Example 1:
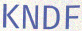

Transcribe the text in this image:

KNDF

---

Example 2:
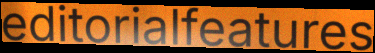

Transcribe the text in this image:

editorialfeatures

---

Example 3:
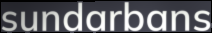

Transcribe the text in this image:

sundarbans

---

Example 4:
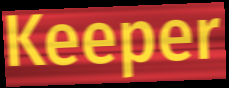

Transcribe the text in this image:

Keeper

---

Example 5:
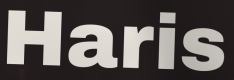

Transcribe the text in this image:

Haris